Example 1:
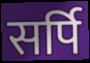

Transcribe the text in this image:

सर्पि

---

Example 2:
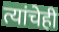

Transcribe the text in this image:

त्यांचेही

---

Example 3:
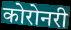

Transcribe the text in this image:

कोरोनरी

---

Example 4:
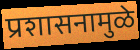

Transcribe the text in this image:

प्रशासनामुळे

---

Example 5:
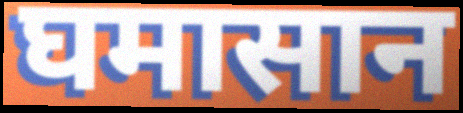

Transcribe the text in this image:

घमासान